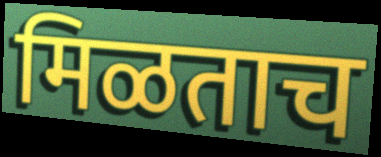
मिळताच